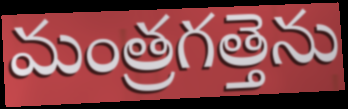
మంత్రగత్తెను